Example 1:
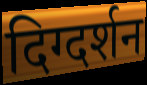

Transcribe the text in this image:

दिग्दर्शन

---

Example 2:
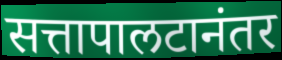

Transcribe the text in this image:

सत्तापालटानंतर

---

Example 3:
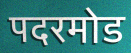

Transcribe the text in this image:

पदरमोड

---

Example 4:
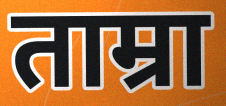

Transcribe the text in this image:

ताम्रा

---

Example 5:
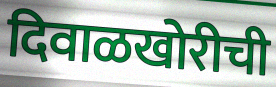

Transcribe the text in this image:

दिवाळखोरीची